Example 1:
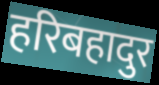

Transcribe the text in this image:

हरिबहादुर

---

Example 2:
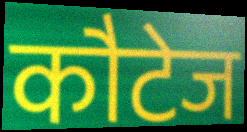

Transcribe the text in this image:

कौटेज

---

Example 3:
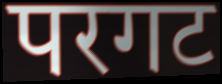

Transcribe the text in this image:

परगट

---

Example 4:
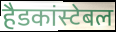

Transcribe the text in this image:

हैडकांस्टेबल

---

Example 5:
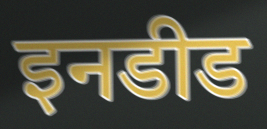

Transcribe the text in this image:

इनडीड